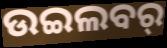
ଉଇଲବର୍